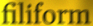
filiform